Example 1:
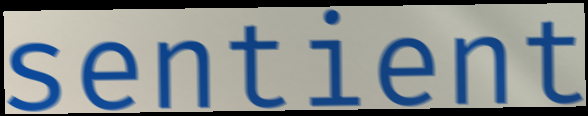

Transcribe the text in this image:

sentient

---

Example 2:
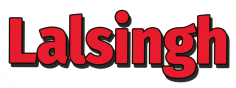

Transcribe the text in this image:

Lalsingh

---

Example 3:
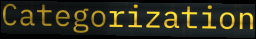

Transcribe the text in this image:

Categorization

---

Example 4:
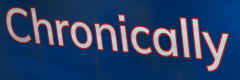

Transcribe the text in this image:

Chronically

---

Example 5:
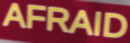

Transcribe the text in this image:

AFRAID